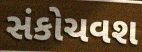
સંકોચવશ